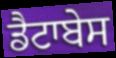
ਡੈਟਾਬੇਸ